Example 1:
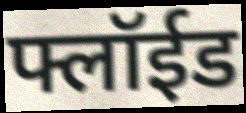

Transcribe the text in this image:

फ्लॉईड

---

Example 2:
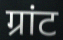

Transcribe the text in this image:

ग्रांट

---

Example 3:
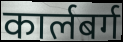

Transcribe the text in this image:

कार्लबर्ग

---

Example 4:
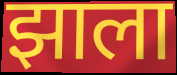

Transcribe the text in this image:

झाला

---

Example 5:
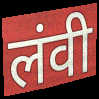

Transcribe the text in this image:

लंवी